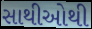
સાથીઓથી